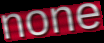
none